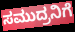
ಸಮುದ್ರನಿಗೆ